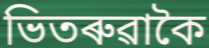
ভিতৰুৱাকৈ